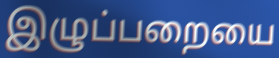
இழுப்பறையை